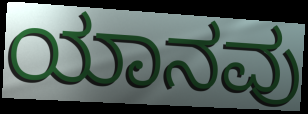
ಯಾನವು